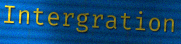
Intergration